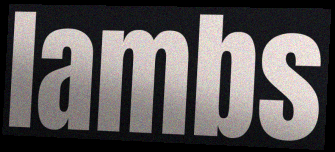
lambs